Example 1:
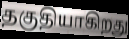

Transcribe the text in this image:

தகுதியாகிறது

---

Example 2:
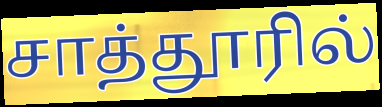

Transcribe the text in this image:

சாத்தூரில்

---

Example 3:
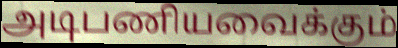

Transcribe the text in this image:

அடிபணியவைக்கும்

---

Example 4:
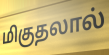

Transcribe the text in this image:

மிகுதலால்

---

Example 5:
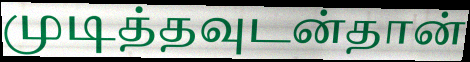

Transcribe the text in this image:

முடித்தவுடன்தான்